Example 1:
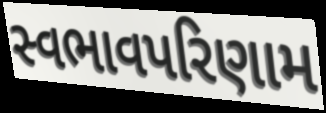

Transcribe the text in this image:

સ્વભાવપરિણામ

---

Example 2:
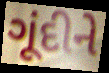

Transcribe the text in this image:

ગૂંદીને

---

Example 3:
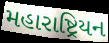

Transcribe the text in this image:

મહારાષ્ટ્રિયન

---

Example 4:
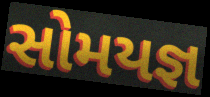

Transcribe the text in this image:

સોમયજ્ઞ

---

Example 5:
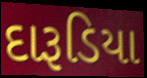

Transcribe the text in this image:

દારૂડિયા